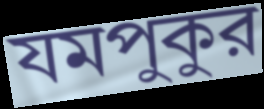
যমপুকুর